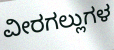
ವೀರಗಲ್ಲುಗಳ